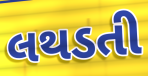
લથડતી